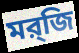
মর্‌জি